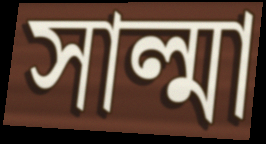
সাল্মা